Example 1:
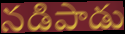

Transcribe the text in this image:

నడిపాడు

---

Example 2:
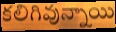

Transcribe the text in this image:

కలిగివున్నాయి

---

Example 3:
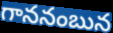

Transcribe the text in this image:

గాననంబున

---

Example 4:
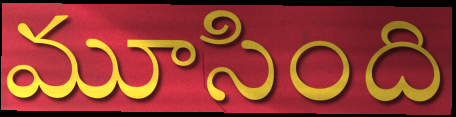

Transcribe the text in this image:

మూసింది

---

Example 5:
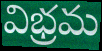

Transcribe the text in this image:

విభ్రమ